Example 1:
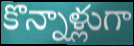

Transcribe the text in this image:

కొన్నాళ్లుగా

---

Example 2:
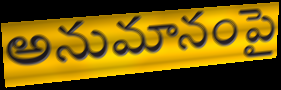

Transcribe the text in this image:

అనుమానంపై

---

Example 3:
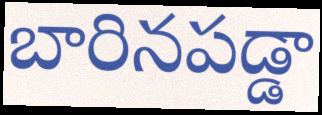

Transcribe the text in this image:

బారినపడ్డా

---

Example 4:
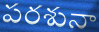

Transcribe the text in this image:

పరశునా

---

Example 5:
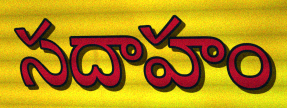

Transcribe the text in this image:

సదాహం